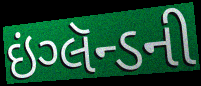
ઇંગ્લૅન્ડની